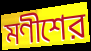
মণীশের